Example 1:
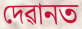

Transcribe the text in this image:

দেৱানত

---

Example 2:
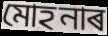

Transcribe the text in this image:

মোহনাৰ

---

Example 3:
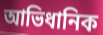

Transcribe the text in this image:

আভিধানিক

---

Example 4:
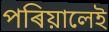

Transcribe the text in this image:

পৰিয়ালেই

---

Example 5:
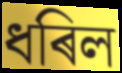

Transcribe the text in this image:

ধৰিল